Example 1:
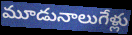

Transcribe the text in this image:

మూడునాలుగేళ్లు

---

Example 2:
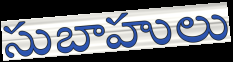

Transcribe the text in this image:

సుబాహులు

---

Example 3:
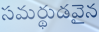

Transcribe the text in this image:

సమర్థుడవైన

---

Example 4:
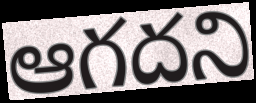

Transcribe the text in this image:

ఆగదని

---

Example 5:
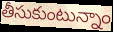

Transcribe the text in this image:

తీసుకుంటున్నాం